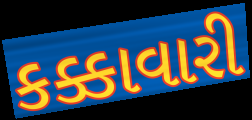
કક્કાવારી